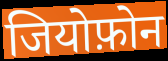
जियोफ़ोन